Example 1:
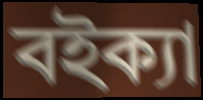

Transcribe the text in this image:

বইক্যা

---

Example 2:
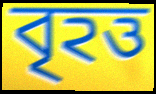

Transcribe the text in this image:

বৃহত্ত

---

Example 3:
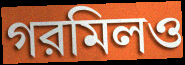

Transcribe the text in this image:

গরমিলও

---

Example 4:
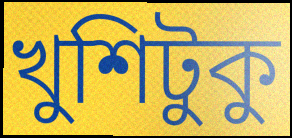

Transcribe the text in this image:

খুশিটুকু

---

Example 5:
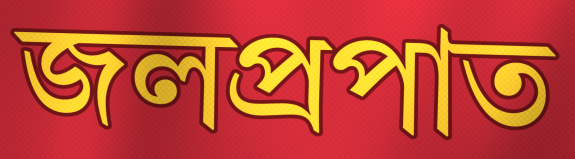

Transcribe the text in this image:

জলপ্রপাত